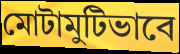
মোটামুটিভাবে